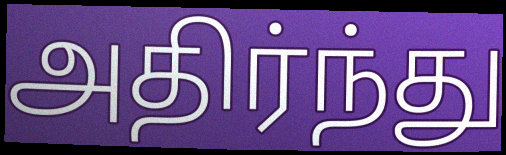
அதிர்ந்து